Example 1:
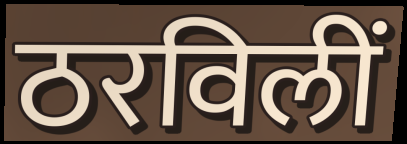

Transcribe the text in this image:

ठरविलीं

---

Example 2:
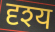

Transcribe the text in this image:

दृश्‍य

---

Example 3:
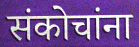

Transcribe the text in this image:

संकोचांना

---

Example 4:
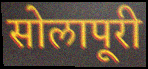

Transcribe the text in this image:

सोलापूरी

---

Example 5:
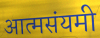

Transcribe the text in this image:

आत्मसंयमी